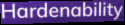
Hardenability